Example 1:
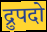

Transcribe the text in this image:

द्रुपदो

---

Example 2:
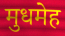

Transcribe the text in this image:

मुधमेह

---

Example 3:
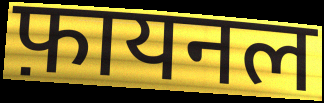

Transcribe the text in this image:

फ़ायनल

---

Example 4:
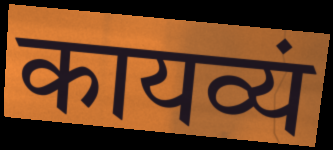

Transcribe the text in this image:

कायव्यं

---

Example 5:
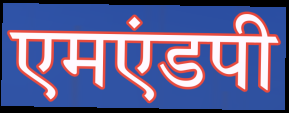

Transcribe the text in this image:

एमएंडपी